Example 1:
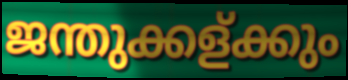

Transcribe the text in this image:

ജന്തുക്കള്ക്കും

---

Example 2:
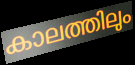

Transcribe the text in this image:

കാലത്തിലും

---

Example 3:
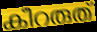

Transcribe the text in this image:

കീറരുത്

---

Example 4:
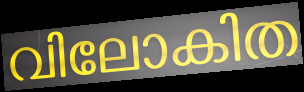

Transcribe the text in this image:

വിലോകിത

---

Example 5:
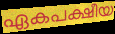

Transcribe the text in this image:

ഏകപക്ഷീയ